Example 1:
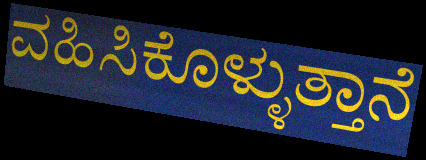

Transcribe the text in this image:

ವಹಿಸಿಕೊಳ್ಳುತ್ತಾನೆ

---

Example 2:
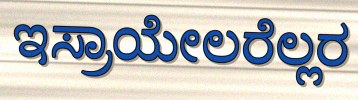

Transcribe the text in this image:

ಇಸ್ರಾಯೇಲರೆಲ್ಲರ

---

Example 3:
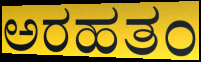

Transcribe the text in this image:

ಅರಹತಂ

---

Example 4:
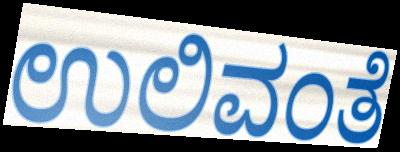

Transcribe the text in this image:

ಉಲಿವಂತೆ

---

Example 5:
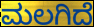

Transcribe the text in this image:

ಮಲಗಿದೆ